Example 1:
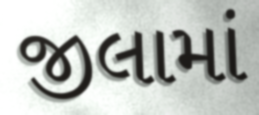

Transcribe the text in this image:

જીલામાં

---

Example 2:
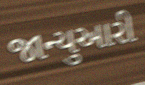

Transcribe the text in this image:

જાન્યુઆરી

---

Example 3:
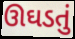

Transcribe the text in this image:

ઊઘડતું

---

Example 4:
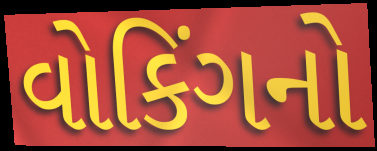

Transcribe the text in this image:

વોકિંગનો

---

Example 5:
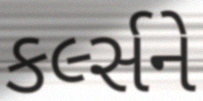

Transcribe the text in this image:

કર્લ્સને